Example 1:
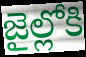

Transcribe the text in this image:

జైల్లోకి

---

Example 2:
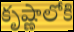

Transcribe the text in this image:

కృష్ణాలోకి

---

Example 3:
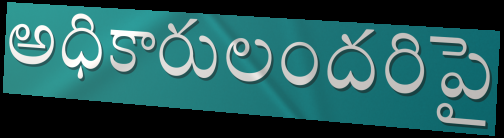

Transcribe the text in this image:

అధికారులందరిపై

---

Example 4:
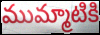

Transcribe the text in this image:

ముమ్మాటికి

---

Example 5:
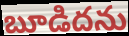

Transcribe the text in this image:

బూడిదను